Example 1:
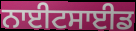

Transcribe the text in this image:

ਨਾਈਟਸਾਈਡ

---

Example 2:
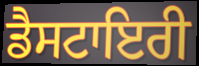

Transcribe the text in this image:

ਡੈਸਟਾਇਰੀ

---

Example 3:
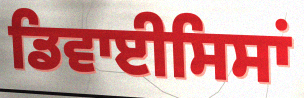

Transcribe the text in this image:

ਡਿਵਾਈਸਿਸਾਂ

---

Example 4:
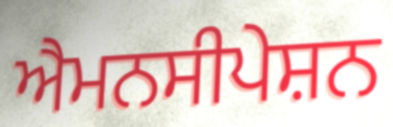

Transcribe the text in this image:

ਐਮਨਸੀਪੇਸ਼ਨ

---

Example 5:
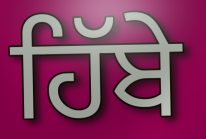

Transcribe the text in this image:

ਹਿੱਬੇ